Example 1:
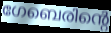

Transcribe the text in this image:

ഗേബെരിന്റെ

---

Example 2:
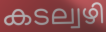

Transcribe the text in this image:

കടല്വഴി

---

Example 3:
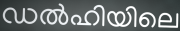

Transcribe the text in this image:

ഡൽഹിയിലെ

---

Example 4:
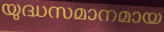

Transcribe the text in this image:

യുദ്ധസമാനമായ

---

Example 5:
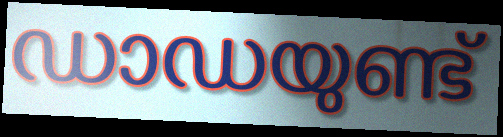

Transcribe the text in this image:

ഡാഡയുണ്ട്